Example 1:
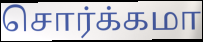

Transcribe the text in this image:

சொர்க்கமா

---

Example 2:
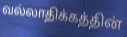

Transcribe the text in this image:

வல்லாதிக்கத்தின்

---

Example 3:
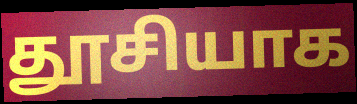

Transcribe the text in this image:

தூசியாக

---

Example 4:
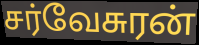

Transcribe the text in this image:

சர்வேசுரன்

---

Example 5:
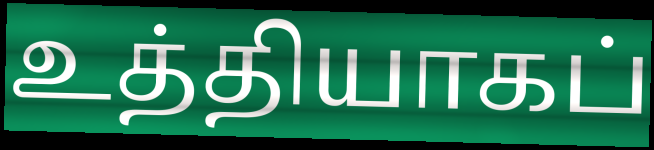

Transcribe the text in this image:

உத்தியாகப்